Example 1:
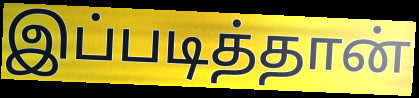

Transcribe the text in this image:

இப்படித்தான்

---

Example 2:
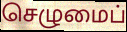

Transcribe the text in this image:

செழுமைப்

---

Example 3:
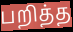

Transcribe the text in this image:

பறித்த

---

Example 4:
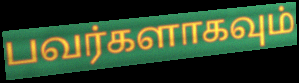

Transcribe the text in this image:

பவர்களாகவும்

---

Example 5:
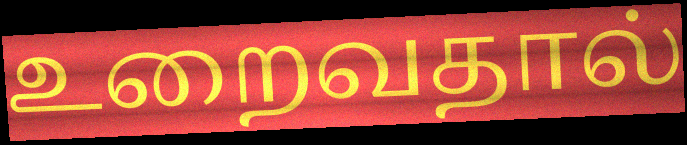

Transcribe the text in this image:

உறைவதால்